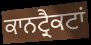
ਕਾਨਟ੍ਰੈਕਟਾਂ